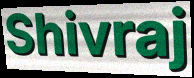
Shivraj